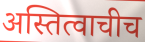
अस्तित्वाचीच